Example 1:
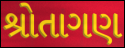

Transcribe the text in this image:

શ્રોતાગણ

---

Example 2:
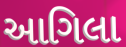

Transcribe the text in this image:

આગિલા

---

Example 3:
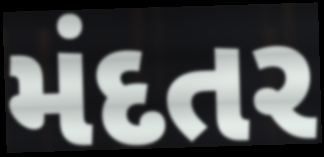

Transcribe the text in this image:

મંદતર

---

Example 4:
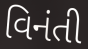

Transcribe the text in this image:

વિનંતી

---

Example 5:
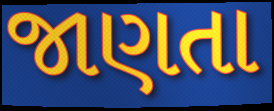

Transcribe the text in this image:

જાણતા